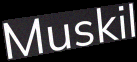
Muskil